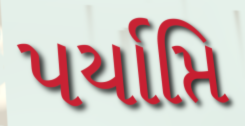
પર્યાપ્તિ